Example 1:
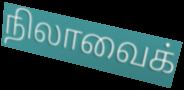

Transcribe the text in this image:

நிலாவைக்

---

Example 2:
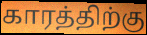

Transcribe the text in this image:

காரத்திற்கு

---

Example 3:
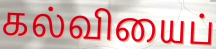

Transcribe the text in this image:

கல்வியைப்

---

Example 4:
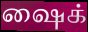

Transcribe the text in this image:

ஷைக்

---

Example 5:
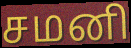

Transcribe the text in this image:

சமனி